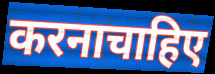
करनाचाहिए